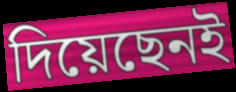
দিয়েছেনই